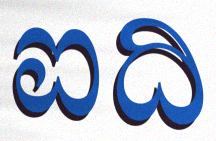
ಐದಿ